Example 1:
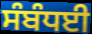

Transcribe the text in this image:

ਸੰਬੰਧਈ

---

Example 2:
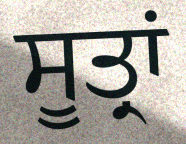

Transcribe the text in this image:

ਸੂਤ੍ਰਾਂ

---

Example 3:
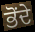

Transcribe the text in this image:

ਭੋਂਦੇ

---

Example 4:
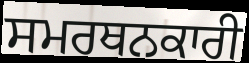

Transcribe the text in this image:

ਸਮਰਥਨਕਾਰੀ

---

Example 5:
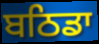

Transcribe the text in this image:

ਬਠਿਡਾ